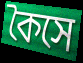
কৈসে